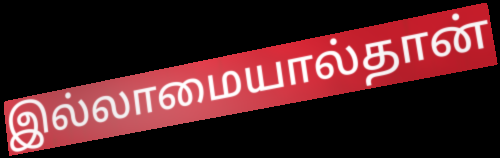
இல்லாமையால்தான்